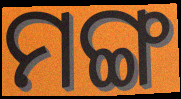
ମଙ୍ଗ